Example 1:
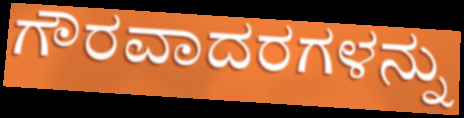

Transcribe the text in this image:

ಗೌರವಾದರಗಳನ್ನು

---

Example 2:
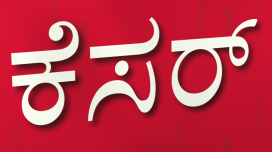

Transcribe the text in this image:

ಕೆಸರ್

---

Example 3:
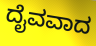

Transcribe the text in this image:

ದೈವವಾದ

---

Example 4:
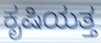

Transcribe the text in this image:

ಕೃಷಿಯತ್ತ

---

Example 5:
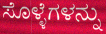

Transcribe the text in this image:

ಸೊಳ್ಳೆಗಳನ್ನು